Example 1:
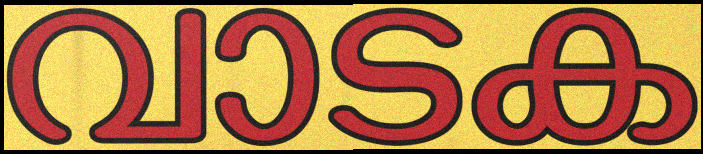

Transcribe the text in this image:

വാടക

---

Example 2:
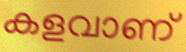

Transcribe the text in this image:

കളവാണ്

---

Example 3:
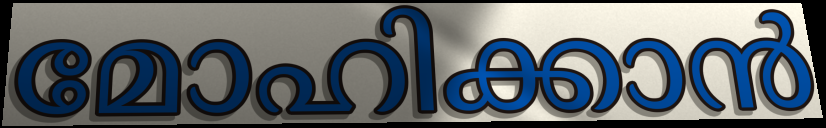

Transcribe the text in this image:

മോഹിക്കാൻ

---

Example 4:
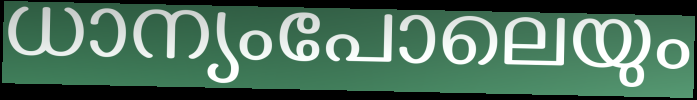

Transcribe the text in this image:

ധാന്യംപോലെയും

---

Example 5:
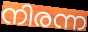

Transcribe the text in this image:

നിരന്ന